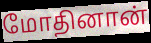
மோதினான்